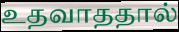
உதவாததால்